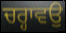
ਚਰ੍ਹਾਵਉ